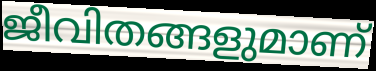
ജീവിതങ്ങളുമാണ്